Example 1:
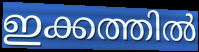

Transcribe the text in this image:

ഇക്കത്തിൽ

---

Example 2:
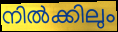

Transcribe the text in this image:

നിൽക്കിലും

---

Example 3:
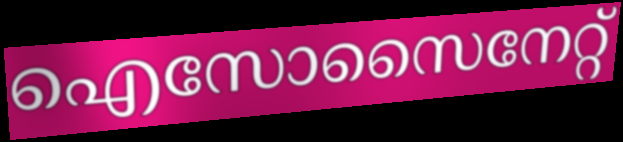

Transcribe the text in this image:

ഐസോസൈനേറ്റ്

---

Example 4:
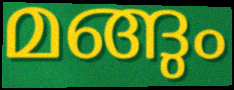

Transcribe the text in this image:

മങ്ങും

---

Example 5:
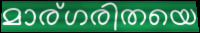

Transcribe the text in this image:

മാര്ഗരിതയെ